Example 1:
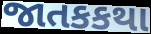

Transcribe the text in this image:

જાતકકથા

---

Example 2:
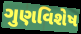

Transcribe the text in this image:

ગુણવિશેષ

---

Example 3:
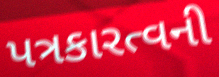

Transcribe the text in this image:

પત્રકારત્વની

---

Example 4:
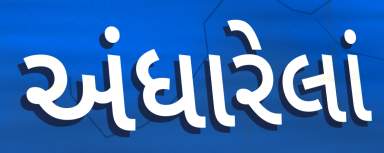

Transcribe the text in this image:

અંધારેલાં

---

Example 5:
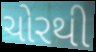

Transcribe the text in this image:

ચોરથી